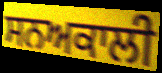
ਸਨਅਕਾਲੀ